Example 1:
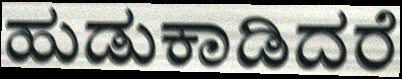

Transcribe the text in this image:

ಹುಡುಕಾಡಿದರೆ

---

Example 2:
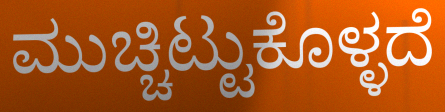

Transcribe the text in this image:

ಮುಚ್ಚಿಟ್ಟುಕೊಳ್ಳದೆ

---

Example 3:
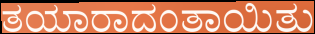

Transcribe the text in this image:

ತಯಾರಾದಂತಾಯಿತು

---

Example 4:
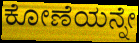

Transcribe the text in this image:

ಕೋಣೆಯನ್ನೇ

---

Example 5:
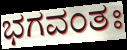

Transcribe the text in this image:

ಭಗವಂತಃ